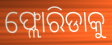
ଫ୍ଲୋରିଡାକୁ